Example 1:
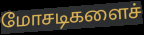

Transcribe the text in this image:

மோசடிகளைச்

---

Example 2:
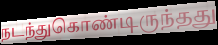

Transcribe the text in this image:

நடந்துகொண்டிருந்தது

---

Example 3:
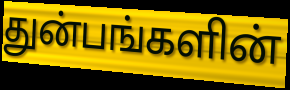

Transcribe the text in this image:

துன்பங்களின்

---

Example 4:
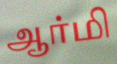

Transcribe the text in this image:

ஆர்மி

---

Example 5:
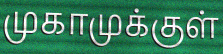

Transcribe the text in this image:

முகாமுக்குள்